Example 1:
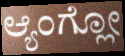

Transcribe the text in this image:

ಆ್ಯಂಗ್ಲೋ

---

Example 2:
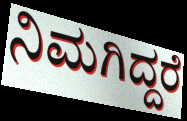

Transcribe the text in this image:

ನಿಮಗಿದ್ದರೆ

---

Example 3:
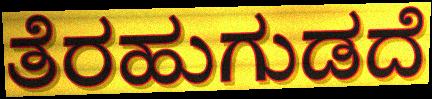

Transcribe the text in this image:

ತೆರಹುಗುಡದೆ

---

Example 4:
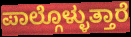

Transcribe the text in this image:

ಪಾಲ್ಗೊಳ್ಳುತ್ತಾರೆ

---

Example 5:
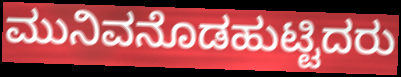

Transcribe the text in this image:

ಮುನಿವನೊಡಹುಟ್ಟಿದರು